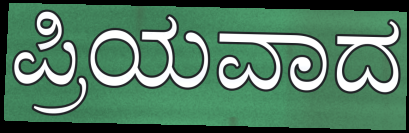
ಪ್ರಿಯವಾದ